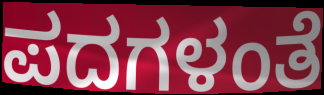
ಪದಗಳಂತೆ